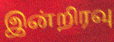
இன்றிரவு